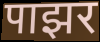
पाझर